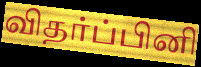
விதர்ப்பினி